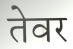
तेवर